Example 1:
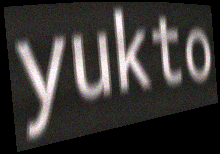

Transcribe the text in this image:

yukto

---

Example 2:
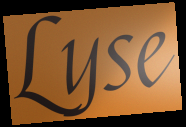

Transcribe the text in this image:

Lyse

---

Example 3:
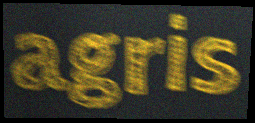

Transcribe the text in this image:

agris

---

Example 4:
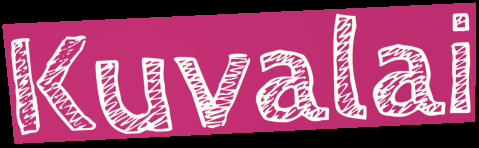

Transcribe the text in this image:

Kuvalai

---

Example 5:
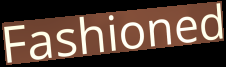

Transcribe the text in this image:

Fashioned